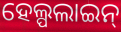
ହେଲ୍ପଲାଇନ୍